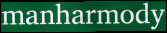
manharmody